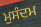
ਮੁਸੰਦਮ